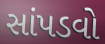
સાંપડવો